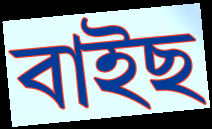
বাইছ